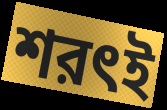
শরৎই